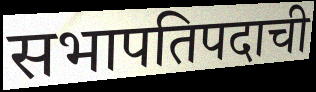
सभापतिपदाची